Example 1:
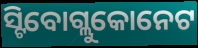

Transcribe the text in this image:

ସ୍ଟିବୋଗ୍ଲୁକୋନେଟ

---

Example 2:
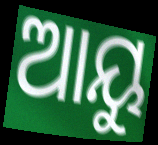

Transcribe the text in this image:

ଆୟୁ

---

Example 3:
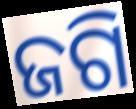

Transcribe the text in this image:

ଜଗି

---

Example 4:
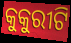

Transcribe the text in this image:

କୁକୁରୀଟି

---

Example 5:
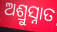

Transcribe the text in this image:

ଅଶ୍ରୁସ୍ନାତ